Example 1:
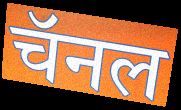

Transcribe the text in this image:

चॅनल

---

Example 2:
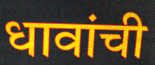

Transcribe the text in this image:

धावांची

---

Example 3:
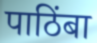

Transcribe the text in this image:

पाठिंबा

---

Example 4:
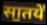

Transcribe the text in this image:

सा॒तये॑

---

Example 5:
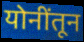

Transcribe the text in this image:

योनींतून